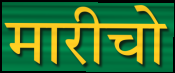
मारीचो